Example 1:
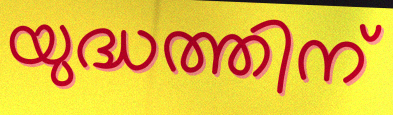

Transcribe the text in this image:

യുദ്ധത്തിന്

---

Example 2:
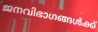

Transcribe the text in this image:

ജനവിഭാഗങ്ങൾക്ക്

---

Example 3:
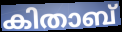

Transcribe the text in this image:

കിതാബ്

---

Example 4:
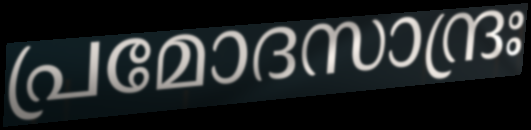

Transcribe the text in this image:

പ്രമോദസാന്ദ്രഃ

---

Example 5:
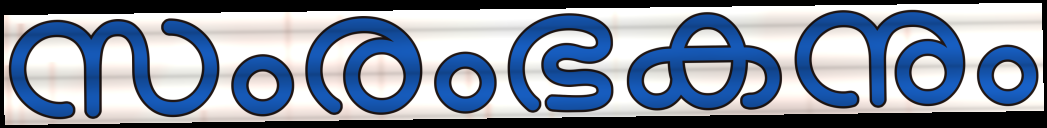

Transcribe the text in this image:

സംരംഭകനും